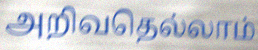
அறிவதெல்லாம்